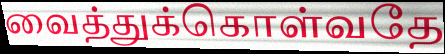
வைத்துக்கொள்வதே